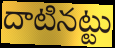
దాటినట్టు